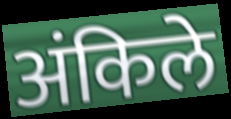
अंकिले